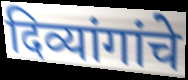
दिव्यांगांचे